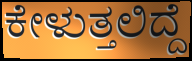
ಕೇಳುತ್ತಲಿದ್ದೆ